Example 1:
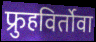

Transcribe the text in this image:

फ्रुहविर्तोवा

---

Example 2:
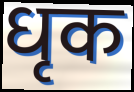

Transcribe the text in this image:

धृक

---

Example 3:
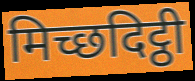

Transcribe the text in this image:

मिच्छदिट्ठी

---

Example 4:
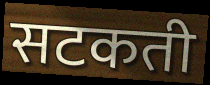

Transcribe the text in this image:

सटकती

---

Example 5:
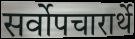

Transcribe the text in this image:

सर्वोपचारार्थे